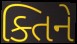
ક્તિને